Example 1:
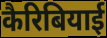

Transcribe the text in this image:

कैरिबियाई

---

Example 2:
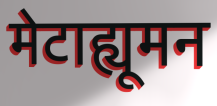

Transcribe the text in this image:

मेटाह्यूमन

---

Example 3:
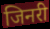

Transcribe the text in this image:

जिनरी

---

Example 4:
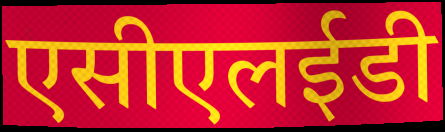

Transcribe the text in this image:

एसीएलईडी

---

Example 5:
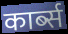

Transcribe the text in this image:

कार्ब्स